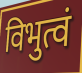
विभुत्वं